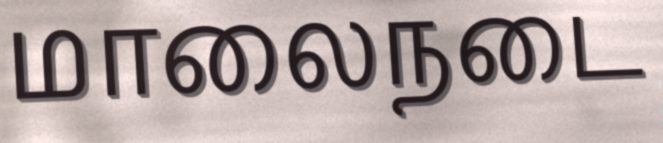
மாலைநடை